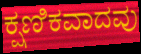
ಕ್ಷಣಿಕವಾದವು